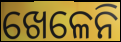
ଖେଳେନି